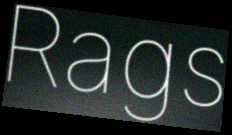
Rags